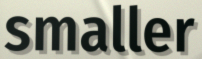
smaller